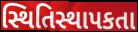
સ્થિતિસ્થાપકતા